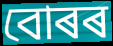
বোৰৰ